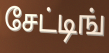
சேட்டிங்